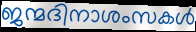
ജന്മദിനാശംസകൾ